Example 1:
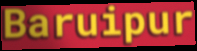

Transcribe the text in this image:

Baruipur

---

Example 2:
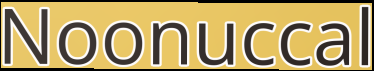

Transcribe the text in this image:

Noonuccal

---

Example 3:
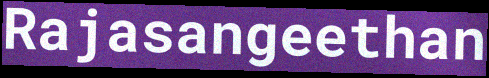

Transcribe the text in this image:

Rajasangeethan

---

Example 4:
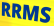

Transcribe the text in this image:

RRMS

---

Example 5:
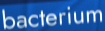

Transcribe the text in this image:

bacterium